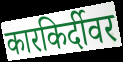
कारकिर्दीवर